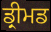
ਡ੍ਰੀਮਡ